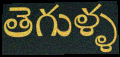
తెగుళ్ళ